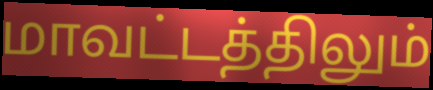
மாவட்டத்திலும்